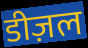
डीज़ल